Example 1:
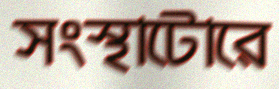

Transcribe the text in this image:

সংস্থাটোৱে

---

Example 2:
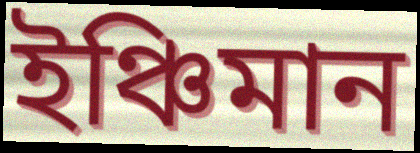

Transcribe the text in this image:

ইঞ্চিমান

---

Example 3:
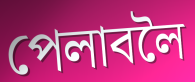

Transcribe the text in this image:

পেলাবলৈ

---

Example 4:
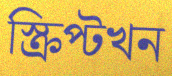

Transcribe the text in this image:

স্ক্ৰিপ্টখন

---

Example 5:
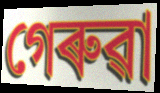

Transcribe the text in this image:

গেৰুৱা